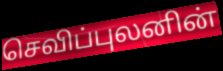
செவிப்புலனின்